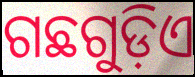
ଗଛଗୁଡ଼ିଏ